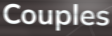
Couples